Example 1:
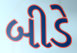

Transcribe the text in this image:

બીડે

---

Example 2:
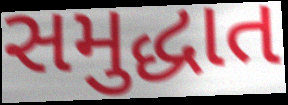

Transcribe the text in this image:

સમુદ્ધાત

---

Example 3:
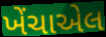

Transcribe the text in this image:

ખેંચાએલ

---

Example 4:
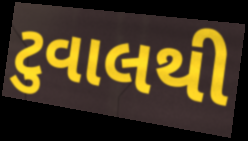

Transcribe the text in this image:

ટુવાલથી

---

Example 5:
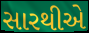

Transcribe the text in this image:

સારથીએ